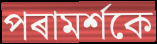
পৰামৰ্শকে